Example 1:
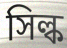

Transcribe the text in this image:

সিল্ক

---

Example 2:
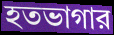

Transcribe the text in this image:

হতভাগার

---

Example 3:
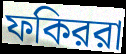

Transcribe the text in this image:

ফকিররা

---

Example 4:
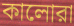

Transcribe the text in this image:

কালোরা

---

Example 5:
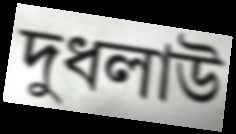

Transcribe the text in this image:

দুধলাউ